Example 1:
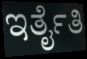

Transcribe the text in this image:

ಇರ್ತೈತಿ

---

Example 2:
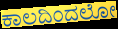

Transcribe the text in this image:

ಕಾಲದಿಂದಲೋ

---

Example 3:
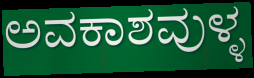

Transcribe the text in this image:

ಅವಕಾಶವುಳ್ಳ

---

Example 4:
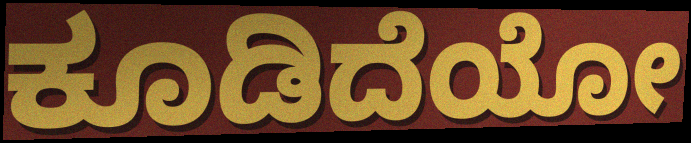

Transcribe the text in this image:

ಕೂಡಿದೆಯೋ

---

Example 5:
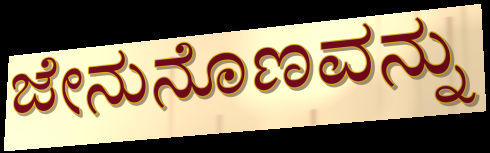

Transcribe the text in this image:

ಜೇನುನೊಣವನ್ನು